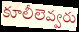
కూలీలెవ్వరు